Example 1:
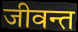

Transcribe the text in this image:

जीवन्त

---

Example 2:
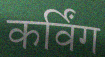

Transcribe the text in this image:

कर्विंग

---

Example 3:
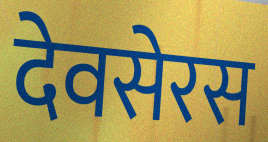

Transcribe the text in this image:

देवसेरस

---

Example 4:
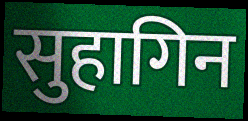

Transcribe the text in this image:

सुहागिन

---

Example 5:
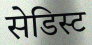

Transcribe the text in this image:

सेडिस्ट